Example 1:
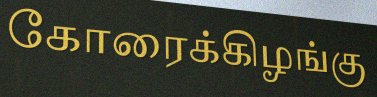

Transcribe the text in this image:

கோரைக்கிழங்கு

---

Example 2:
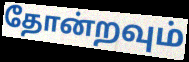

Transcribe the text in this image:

தோன்றவும்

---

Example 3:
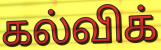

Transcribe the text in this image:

கல்விக்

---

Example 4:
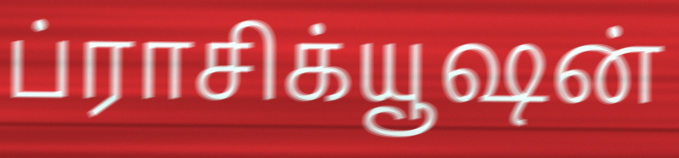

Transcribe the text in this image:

ப்ராசிக்யூஷன்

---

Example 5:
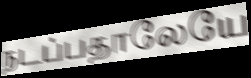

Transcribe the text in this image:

நடப்பதாலேயே